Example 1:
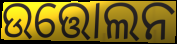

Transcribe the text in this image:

ଉତ୍ତୋଲନ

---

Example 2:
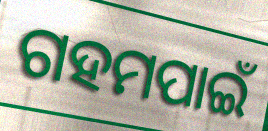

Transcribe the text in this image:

ଗହମପାଇଁ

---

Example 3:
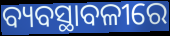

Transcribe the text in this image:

ବ୍ୟବସ୍ଥାବଳୀରେ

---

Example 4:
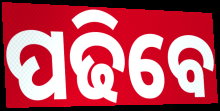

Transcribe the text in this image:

ପଢିବେ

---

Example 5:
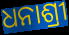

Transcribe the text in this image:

ଧନାଶ୍ରୀ